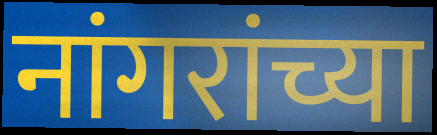
नांगरांच्या